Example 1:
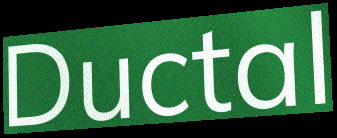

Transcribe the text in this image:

Ductal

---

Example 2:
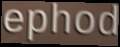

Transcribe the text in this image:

ephod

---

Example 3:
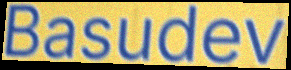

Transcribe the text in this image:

Basudev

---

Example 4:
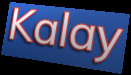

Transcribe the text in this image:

Kalay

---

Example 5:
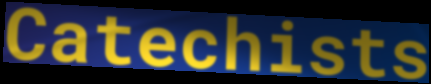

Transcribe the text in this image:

Catechists